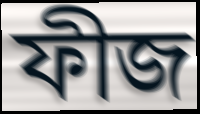
ফীজ